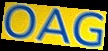
OAG